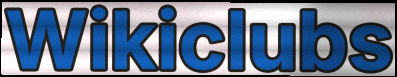
Wikiclubs